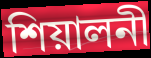
শিয়ালনী